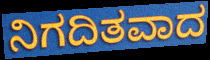
ನಿಗದಿತವಾದ